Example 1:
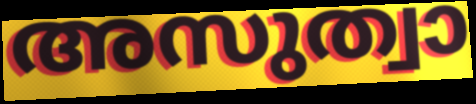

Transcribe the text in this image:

അസുത്വാ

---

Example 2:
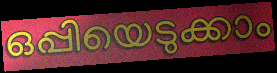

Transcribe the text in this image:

ഒപ്പിയെടുക്കാം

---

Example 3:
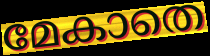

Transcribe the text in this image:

മേകാതെ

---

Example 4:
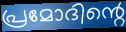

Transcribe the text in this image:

പ്രമോദിന്റെ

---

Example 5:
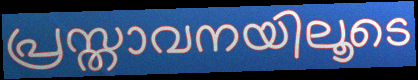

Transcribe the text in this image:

പ്രസ്താവനയിലൂടെ